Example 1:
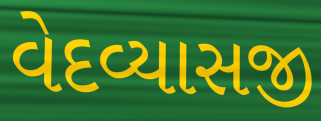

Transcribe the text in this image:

વેદવ્યાસજી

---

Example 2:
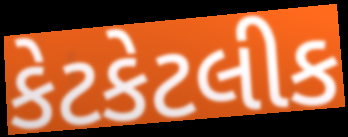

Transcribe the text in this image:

કેટકેટલીક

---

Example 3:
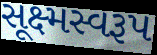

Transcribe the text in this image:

સૂક્ષ્મસ્વરૂપ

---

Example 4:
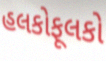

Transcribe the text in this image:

હલકોફૂલકો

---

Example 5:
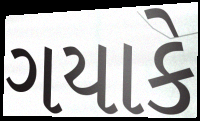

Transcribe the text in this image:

ગયાકે